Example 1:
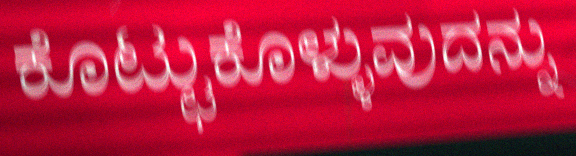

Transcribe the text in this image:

ಕೊಟ್ಟುಕೊಳ್ಳುವುದನ್ನು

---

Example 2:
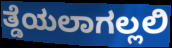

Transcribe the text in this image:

ತ್ಡೆಯಲಾಗಲ್ಲಲಿ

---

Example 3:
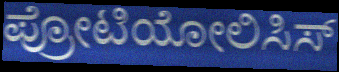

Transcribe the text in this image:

ಪ್ರೋಟಿಯೋಲಿಸಿಸ್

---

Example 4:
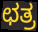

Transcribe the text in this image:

ಛತ್ರ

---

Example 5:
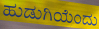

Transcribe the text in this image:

ಹುಡುಗಿಯೆಂದು